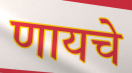
णायचे